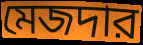
মেজদার